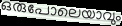
ഒരുപോലെയാവും